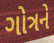
ગોત્રને